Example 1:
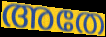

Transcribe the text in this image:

അതേ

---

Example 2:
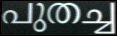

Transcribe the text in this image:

പുതച്ച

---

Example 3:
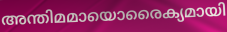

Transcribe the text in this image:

അന്തിമമായൊരൈക്യമായി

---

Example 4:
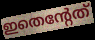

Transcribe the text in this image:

ഇതെന്റേത്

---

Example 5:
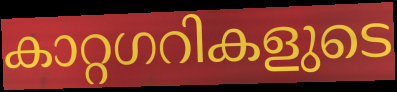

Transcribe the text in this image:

കാറ്റഗറികളുടെ